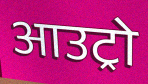
आउट्रो